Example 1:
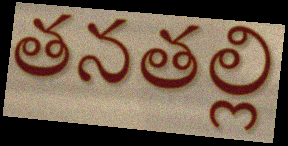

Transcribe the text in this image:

తనతల్లి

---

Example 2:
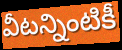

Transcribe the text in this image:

వీటన్నింటికీ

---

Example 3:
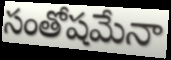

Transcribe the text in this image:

సంతోషమేనా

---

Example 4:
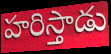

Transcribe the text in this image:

హరిస్తాడు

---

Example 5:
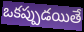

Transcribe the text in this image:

ఒకప్పుడయితే